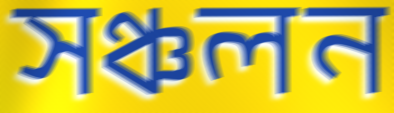
সঞ্চলন